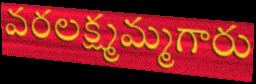
వరలక్ష్మమ్మగారు